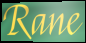
Rane